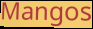
Mangos